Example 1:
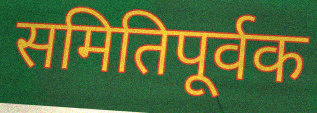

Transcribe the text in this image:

समितिपूर्वक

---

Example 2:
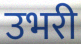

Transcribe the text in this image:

उभरी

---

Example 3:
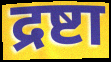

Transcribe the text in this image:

द्रष्टा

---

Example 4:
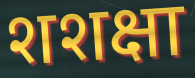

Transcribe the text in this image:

शशक्षा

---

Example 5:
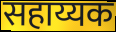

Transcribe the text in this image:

सहाय्यक